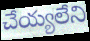
చేయ్యలేని